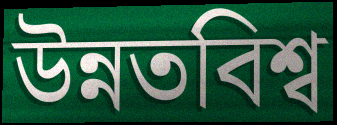
উন্নতবিশ্ব